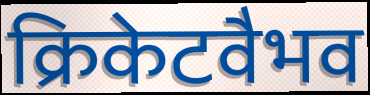
क्रिकेटवैभव